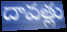
దావత్లు